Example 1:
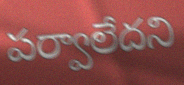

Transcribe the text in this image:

పర్వాలేదని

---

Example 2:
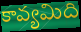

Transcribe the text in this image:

కావ్యమిది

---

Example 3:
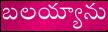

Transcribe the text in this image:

బలయ్యాను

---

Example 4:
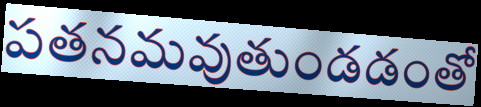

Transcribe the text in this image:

పతనమవుతుండడంతో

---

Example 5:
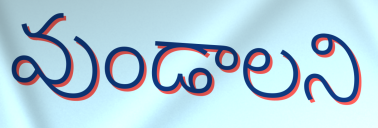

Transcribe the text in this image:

వుండాలని